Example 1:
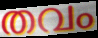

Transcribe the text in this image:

തവം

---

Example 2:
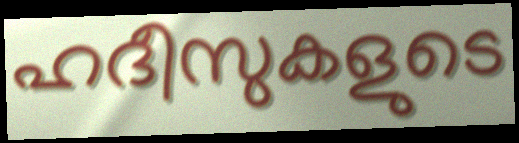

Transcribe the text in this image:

ഹദീസുകളുടെ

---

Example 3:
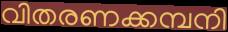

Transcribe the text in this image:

വിതരണക്കമ്പനി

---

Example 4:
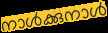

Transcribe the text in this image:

നാൾക്കുനാൾ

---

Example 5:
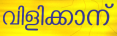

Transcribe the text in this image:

വിളിക്കാന്